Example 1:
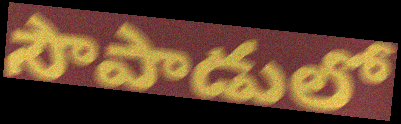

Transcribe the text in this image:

సౌపాడులో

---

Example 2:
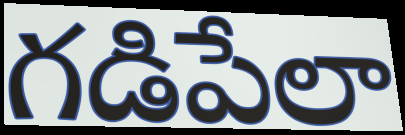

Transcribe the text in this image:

గడిపేలా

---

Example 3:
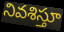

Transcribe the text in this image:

నివశిస్తూ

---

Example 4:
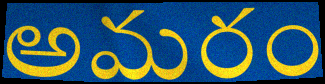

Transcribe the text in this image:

అమరం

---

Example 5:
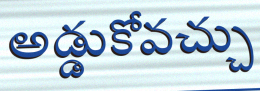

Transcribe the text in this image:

అడ్డుకోవచ్చు